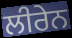
ਲੀਰੇਨ